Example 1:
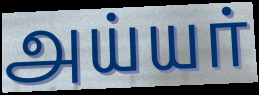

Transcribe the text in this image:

அய்யர்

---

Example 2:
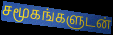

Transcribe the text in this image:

சமூகங்களுடன்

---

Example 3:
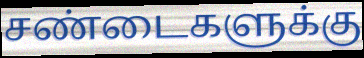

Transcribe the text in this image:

சண்டைகளுக்கு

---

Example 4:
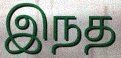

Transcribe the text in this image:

இநத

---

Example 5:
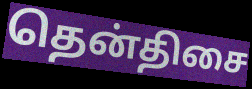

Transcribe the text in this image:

தென்திசை